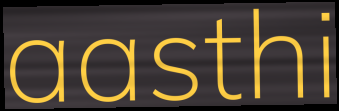
aasthi